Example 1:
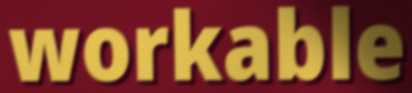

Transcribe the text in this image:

workable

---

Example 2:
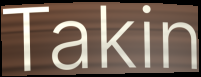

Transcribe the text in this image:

Takin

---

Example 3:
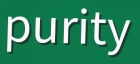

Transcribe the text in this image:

purity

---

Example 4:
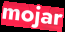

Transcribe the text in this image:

mojar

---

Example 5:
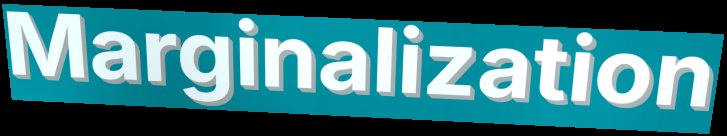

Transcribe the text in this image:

Marginalization